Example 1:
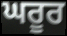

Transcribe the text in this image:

ਘਰੂਰ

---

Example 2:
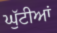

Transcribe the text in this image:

ਘੁੱਟੀਆਂ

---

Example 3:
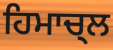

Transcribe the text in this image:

ਹਿਮਾਚ੍ਲ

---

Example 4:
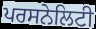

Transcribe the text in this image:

ਪਰਸਨੇਲਿਟੀ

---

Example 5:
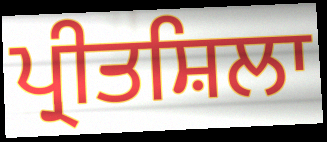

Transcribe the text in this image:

ਪ੍ਰੀਤਸ਼ਿਲਾ